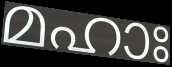
മഹാഃ